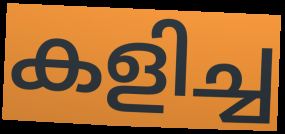
കളിച്ച